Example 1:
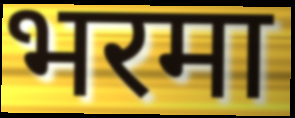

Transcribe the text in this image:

भरमा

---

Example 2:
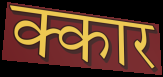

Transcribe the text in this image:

क्कार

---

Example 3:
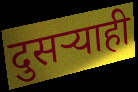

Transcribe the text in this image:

दुसर्‍याही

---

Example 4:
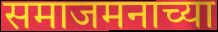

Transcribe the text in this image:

समाजमनाच्या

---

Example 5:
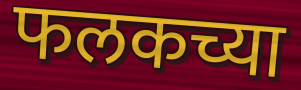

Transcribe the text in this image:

फलकच्या